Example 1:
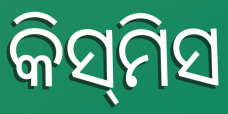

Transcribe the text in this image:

କିସ୍‌ମିସ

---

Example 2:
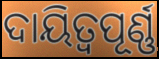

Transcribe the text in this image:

ଦାୟିତ୍ବପୂର୍ଣ୍ଣ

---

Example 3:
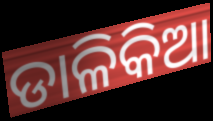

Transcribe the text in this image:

ଡାଳିକିଆ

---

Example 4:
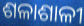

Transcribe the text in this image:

ଶଳାଶାଳୀ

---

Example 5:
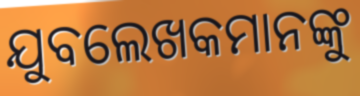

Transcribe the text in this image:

ଯୁବଲେଖକମାନଙ୍କୁ